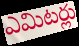
ఎమిటర్లు